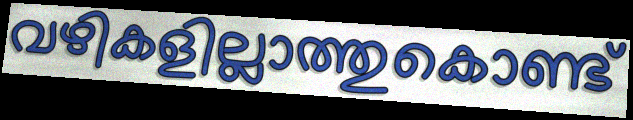
വഴികളില്ലാത്തുകൊണ്ട്